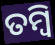
ତମ୍ବି